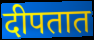
दीपतात